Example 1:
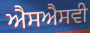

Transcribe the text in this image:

ਐਸਐਸਵੀ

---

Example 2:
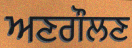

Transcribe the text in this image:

ਅਣਗੌਲਣ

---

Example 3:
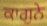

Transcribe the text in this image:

ਕਾਗੁਨੇ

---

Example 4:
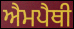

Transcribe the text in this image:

ਐਮਪੈਥੀ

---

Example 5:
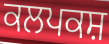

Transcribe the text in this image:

ਕਲਪਕਸ਼